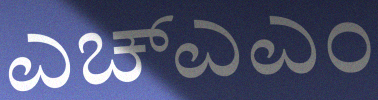
ಎಚ್ಎಎಂ